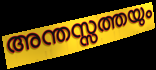
അന്തസ്സത്തയും